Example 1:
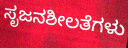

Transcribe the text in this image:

ಸೃಜನಶೀಲತೆಗಳು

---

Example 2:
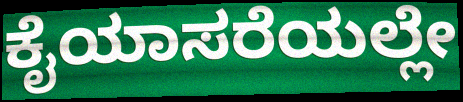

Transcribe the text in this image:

ಕೈಯಾಸರೆಯಲ್ಲೇ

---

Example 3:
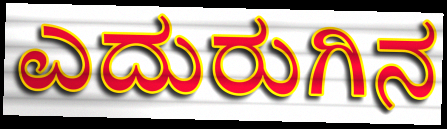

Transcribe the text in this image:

ಎದುರುಗಿನ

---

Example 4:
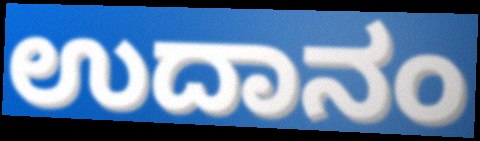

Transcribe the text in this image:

ಉದಾನಂ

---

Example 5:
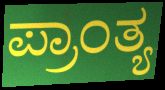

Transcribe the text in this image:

ಪ್ರಾಂತ್ಯ